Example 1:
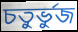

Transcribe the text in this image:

চতুৰ্ভুজ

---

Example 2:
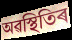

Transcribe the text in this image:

অৱস্থিতিৰ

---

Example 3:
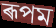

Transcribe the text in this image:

ৰূপম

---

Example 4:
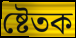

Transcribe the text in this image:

ষ্টেতক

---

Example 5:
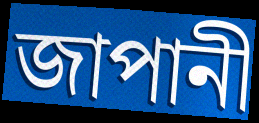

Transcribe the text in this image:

জাপানী